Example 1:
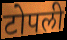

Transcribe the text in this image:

टोपली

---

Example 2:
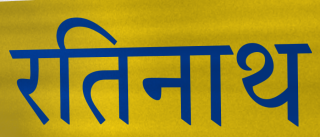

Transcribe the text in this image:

रतिनाथ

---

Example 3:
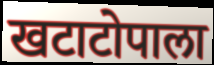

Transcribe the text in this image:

खटाटोपाला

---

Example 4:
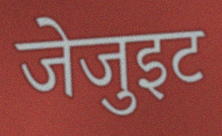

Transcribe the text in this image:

जेजुइट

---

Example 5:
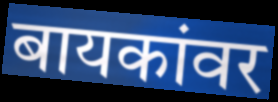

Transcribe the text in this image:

बायकांवर